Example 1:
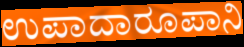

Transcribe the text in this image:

ಉಪಾದಾರೂಪಾನಿ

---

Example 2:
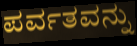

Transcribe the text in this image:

ಪರ್ವತವನ್ನು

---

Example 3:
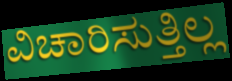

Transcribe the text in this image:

ವಿಚಾರಿಸುತ್ತಿಲ್ಲ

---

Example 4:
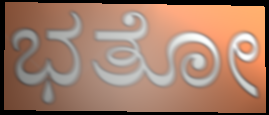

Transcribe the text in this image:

ಭತೋ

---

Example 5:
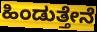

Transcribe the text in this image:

ಹಿಂಡುತ್ತೇನೆ